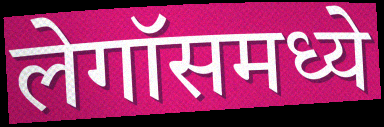
लेगॉसमध्ये